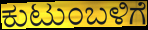
ಕುಟುಂಬಳಿಗೆ